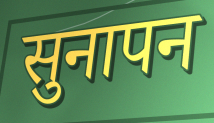
सुनापन